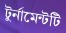
টুর্নামেন্টটি